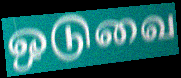
ஒடுவை